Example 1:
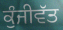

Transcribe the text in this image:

ਕੁੰਜੀਵੱਤ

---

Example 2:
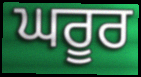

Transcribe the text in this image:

ਘਰੂਰ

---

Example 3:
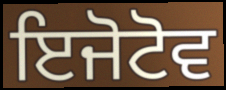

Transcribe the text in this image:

ਇਜੋਟੋਵ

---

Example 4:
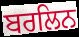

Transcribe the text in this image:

ਬਰਲਿਨ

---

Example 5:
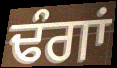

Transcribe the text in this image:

ਢੰਗਾਂ